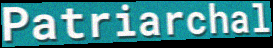
Patriarchal